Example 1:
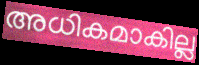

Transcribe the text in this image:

അധികമാകില്ല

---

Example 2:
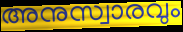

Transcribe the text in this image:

അനുസ്വാരവും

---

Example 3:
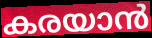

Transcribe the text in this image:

കരയാൻ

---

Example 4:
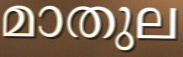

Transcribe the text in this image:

മാതുല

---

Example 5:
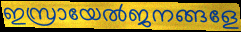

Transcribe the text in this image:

ഇസ്രായേൽജനങ്ങളേ